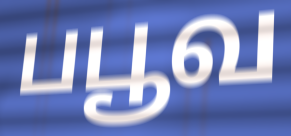
பபூவ